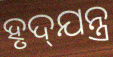
ହୃଦ୍‌ଯନ୍ତ୍ର